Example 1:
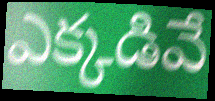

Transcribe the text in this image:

ఎక్కడివే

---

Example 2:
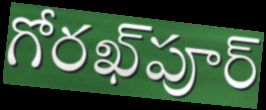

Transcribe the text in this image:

గోరఖ్‌పూర్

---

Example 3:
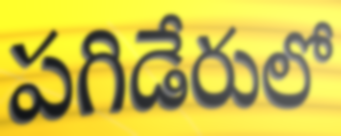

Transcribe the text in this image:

పగిడేరులో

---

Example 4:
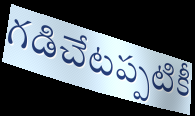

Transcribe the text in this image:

గడిచేటప్పటికీ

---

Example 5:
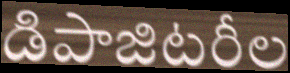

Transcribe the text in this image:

డిపాజిటరీల